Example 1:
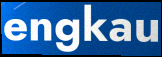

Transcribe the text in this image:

engkau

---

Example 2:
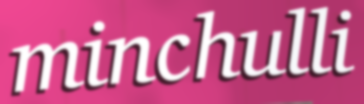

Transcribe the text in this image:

minchulli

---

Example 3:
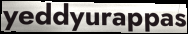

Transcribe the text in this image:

yeddyurappas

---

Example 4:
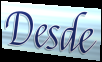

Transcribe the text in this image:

Desde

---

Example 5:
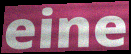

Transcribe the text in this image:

eine